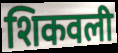
शिकवली